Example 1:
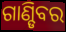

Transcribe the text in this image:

ଗାଣ୍ଡିବର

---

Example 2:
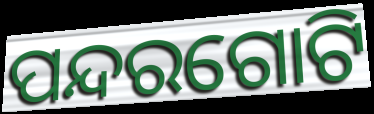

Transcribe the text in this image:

ପନ୍ଦରଗୋଟି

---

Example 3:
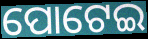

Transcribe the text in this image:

ପୋଟେଇ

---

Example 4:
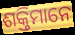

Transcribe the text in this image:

ଶକ୍ତିମାନେ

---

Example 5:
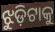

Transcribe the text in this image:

ଝୁଡ଼ିଟାକୁ